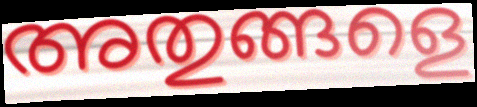
അതുങ്ങളെ